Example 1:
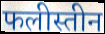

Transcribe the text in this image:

फलीस्तीन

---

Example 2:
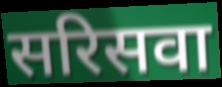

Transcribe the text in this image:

सरिसवा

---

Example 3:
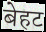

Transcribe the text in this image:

बेहट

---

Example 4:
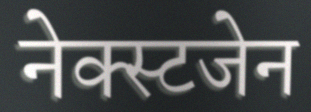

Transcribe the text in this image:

नेक्स्टजेन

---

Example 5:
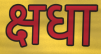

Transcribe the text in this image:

क्षधा